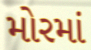
મોરમાં